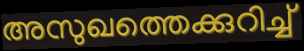
അസുഖത്തെക്കുറിച്ച്